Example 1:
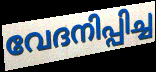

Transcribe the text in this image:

വേദനിപ്പിച്ച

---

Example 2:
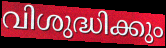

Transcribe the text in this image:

വിശുദ്ധിക്കും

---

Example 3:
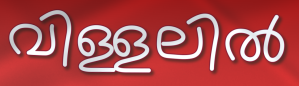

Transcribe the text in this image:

വിള്ളലിൽ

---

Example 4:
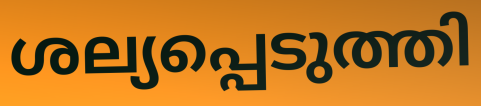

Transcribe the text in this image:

ശല്യപ്പെടുത്തി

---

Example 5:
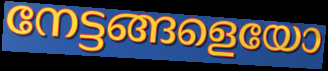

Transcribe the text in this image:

നേട്ടങ്ങളെയോ